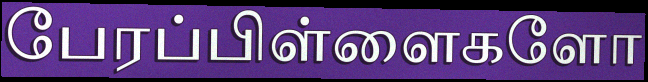
பேரப்பிள்ளைகளோ